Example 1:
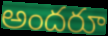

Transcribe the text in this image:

అందరూ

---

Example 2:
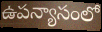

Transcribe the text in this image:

ఉపన్యాసంలో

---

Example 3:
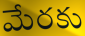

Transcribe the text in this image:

మేరకు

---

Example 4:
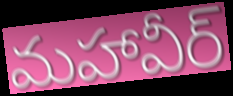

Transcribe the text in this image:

మహావీర్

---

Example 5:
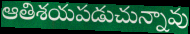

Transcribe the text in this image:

ఆతిశయపడుచున్నావు